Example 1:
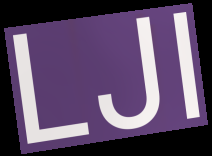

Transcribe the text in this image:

LJI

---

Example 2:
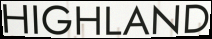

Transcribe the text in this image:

HIGHLAND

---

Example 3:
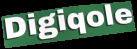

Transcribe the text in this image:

Digiqole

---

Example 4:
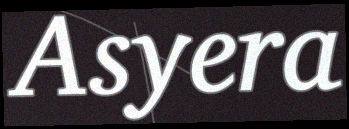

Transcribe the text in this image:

Asyera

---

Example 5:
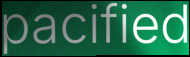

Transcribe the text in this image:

pacified